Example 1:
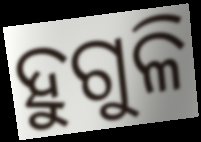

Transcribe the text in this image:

ହୁଗୁଳି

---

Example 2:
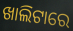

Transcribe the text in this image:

ଖାଲିଟାରେ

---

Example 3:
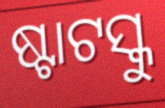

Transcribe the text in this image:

ଷ୍ଟାଟସ୍କୁ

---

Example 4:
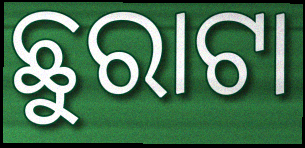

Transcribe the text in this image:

ଛୁରାଟା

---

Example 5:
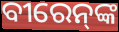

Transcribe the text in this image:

ବୀରେନ୍‍ଙ୍କ